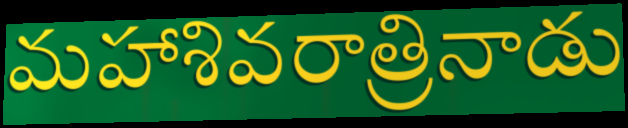
మహాశివరాత్రినాడు